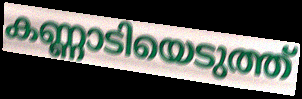
കണ്ണാടിയെടുത്ത്